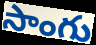
సాంగు